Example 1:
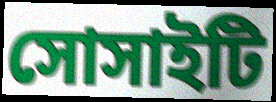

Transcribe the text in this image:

সোসাইটি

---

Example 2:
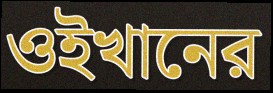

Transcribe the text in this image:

ওইখানের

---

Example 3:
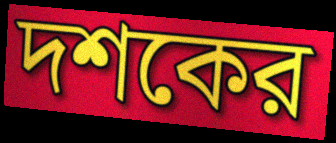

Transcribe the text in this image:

দশকের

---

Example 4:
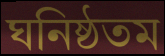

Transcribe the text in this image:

ঘনিষ্ঠতম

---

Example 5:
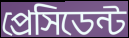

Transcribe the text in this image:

প্রেসিডেন্ট